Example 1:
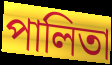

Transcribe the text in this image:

পালিতা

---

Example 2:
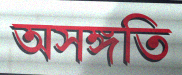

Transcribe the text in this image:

অসঙ্গতি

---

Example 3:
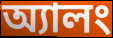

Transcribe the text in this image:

অ্যালং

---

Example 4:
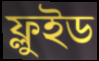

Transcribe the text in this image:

ফ্লুইড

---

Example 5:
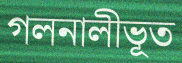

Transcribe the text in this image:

গলনালীভূত